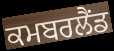
ਕਮਬਰਲੈਂਡ